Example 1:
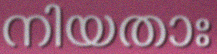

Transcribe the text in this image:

നിയതാഃ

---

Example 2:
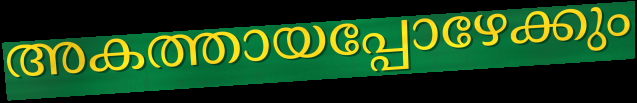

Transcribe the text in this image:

അകത്തായപ്പോഴേക്കും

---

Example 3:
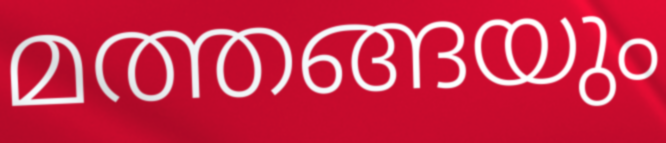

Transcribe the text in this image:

മത്തങ്ങയും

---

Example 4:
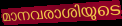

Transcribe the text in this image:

മാനവരാശിയുടെ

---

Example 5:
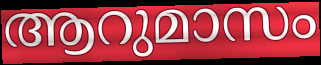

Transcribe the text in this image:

ആറുമാസം